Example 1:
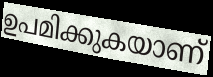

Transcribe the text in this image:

ഉപമിക്കുകയാണ്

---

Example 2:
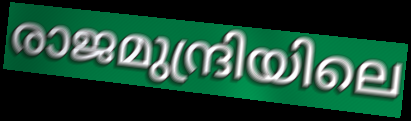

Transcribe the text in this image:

രാജമുന്ദ്രിയിലെ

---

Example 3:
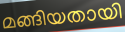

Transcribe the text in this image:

മങ്ങിയതായി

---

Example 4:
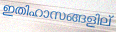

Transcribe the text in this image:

ഇതിഹാസങ്ങളില്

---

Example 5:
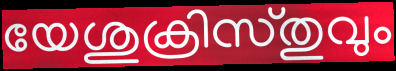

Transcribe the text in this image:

യേശുക്രിസ്തുവും